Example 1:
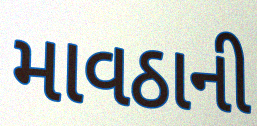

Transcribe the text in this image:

માવઠાની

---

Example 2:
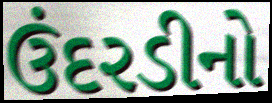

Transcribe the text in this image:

ઉંદરડીનો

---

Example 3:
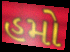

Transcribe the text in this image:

હમો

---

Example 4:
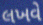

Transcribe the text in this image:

લખવે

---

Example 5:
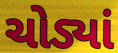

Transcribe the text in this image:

ચોડ્યાં